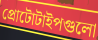
প্রোটোটাইপগুলো